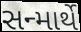
સન્માર્થે